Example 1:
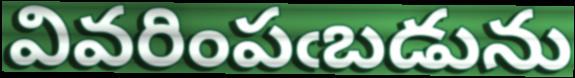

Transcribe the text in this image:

వివరింపఁబడును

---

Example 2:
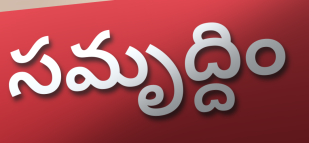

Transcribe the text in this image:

సమృద్దిం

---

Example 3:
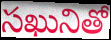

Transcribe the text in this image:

సఖునితో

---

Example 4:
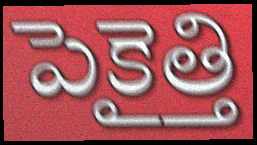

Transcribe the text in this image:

పెకైత్తి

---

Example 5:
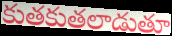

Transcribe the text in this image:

కుతకుతలాడుతూ